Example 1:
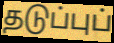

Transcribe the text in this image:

தடுப்புப்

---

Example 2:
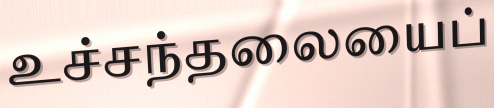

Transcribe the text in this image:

உச்சந்தலையைப்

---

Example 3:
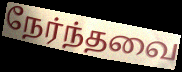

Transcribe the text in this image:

நேர்ந்தவை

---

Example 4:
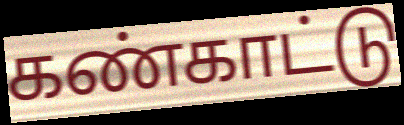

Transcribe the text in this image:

கண்காட்டு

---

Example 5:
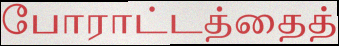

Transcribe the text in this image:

போராட்டத்தைத்